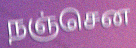
நஞ்சென